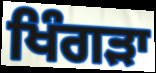
ਖਿੰਗੜਾ